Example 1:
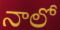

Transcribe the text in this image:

నాలో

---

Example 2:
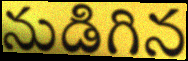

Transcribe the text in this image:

నుడిగిన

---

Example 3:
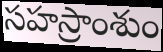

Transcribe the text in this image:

సహస్రాంశుం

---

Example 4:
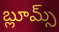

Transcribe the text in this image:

బ్లూమ్స్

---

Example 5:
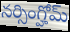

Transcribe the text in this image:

నర్సింగ్హోమ్